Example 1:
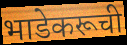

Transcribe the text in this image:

भाडेकरूची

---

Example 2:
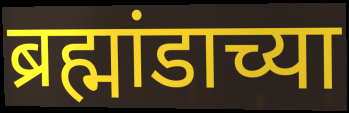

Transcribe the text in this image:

ब्रह्मांडाच्या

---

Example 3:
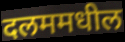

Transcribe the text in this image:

दलममधील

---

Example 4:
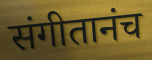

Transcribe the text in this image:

संगीतानंच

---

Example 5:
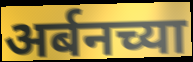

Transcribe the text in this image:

अर्बनच्या